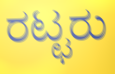
ರಟ್ಟರು